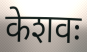
केशवः